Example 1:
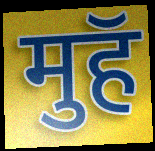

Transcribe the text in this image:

मुहॅ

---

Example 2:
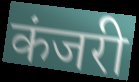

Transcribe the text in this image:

कंजरी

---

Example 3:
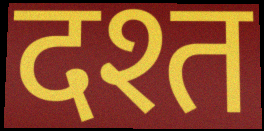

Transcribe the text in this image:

दश्त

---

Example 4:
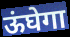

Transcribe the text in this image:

ऊंघेगा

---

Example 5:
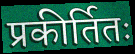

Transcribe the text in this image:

प्रकीर्तितः